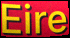
Eire